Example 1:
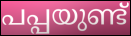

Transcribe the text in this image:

പപ്പയുണ്ട്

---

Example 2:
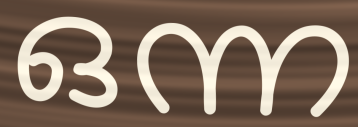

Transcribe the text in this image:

ഒന്ന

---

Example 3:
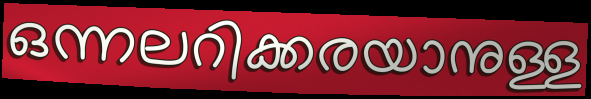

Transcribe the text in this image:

ഒന്നലറിക്കരയാനുള്ള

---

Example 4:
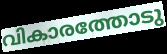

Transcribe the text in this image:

വികാരത്തോടു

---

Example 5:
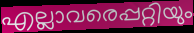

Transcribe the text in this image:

എല്ലാവരെപ്പറ്റിയും